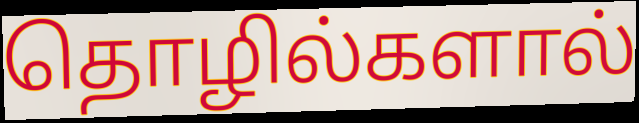
தொழில்களால்